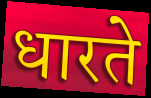
धारते